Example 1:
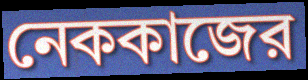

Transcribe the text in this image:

নেককাজের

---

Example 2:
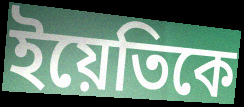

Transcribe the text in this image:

ইয়েতিকে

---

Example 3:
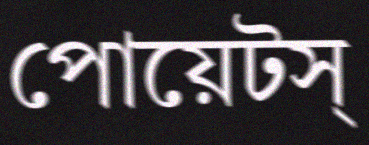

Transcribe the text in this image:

পোয়েটস্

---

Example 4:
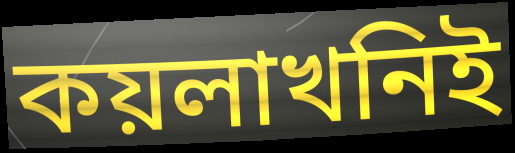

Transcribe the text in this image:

কয়লাখনিই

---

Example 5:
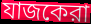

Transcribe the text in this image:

যাজকেরা